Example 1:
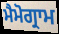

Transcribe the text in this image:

ਮੈਮੋਗ੍ਰਾਮ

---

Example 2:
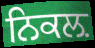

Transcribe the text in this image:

ਨਿਕਲ਼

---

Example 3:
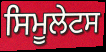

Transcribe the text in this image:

ਸਿਮੂਲੇਟਸ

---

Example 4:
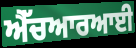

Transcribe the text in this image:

ਐੱਚਆਰਆਈ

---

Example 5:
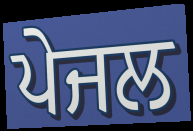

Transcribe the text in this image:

ਪੇਜਲ